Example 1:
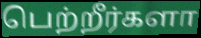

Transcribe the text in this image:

பெற்றீர்களா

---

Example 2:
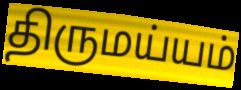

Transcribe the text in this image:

திருமய்யம்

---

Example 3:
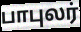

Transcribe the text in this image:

பாபுலர்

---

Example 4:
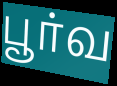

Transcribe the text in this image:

பூர்வ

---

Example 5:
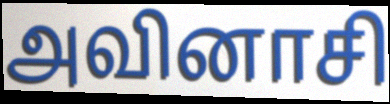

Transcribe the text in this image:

அவினாசி